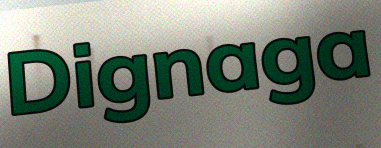
Dignaga